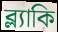
ব্ল্যাকি